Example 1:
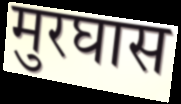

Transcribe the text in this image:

मुरघास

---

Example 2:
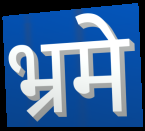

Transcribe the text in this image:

भ्रमे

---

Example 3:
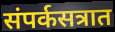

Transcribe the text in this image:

संपर्कसत्रात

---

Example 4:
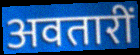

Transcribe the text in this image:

अवतारीं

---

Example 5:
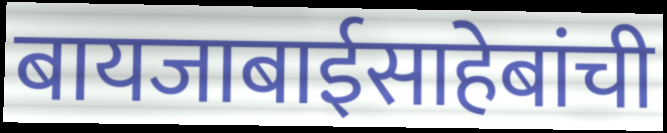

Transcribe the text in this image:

बायजाबाईसाहेबांची